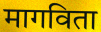
मागविता